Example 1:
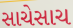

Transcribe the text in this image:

સાચેસાચ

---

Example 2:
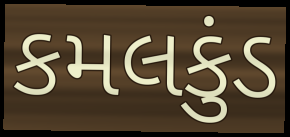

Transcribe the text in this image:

કમલકુંડ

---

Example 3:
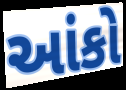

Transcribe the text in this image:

આંકો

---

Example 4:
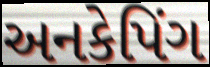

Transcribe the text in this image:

અનકેપિંગ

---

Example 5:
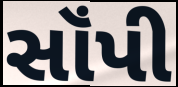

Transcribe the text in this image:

સૉંપી